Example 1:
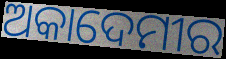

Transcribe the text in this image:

ଅକାଦେମୀର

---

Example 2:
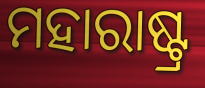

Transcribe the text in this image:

ମହାରାଷ୍ଟ୍ର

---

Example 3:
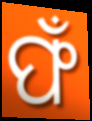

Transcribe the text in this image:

ଫଁ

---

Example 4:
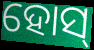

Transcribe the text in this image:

ହୋସ୍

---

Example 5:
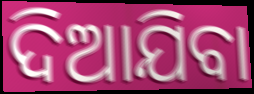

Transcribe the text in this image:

ଦିଆଯିବା